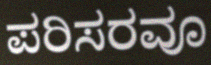
ಪರಿಸರವೂ